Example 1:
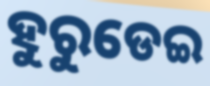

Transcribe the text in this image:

ହୁରୁଡେଇ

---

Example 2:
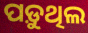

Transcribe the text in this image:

ପଡ଼ୁଥିଲ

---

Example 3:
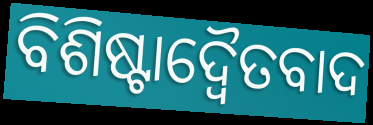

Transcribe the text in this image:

ବିଶିଷ୍ଟାଦ୍ଵୈତବାଦ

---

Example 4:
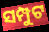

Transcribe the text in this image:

ସମ୍ପୁଟ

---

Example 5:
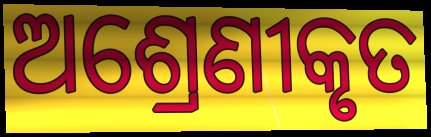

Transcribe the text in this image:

ଅଶ୍ରେଣୀକୃତ